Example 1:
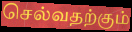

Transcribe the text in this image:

செல்வதற்கும்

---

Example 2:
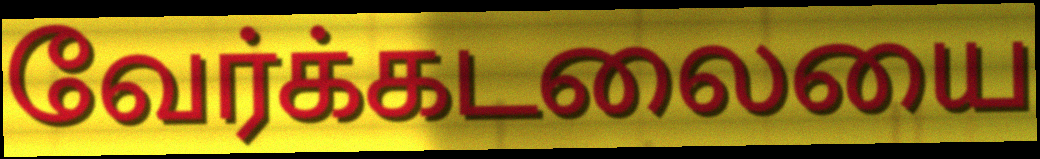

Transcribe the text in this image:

வேர்க்கடலையை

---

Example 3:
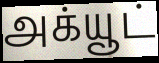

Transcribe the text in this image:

அக்யூட்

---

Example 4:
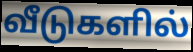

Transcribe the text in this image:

வீடுகளில்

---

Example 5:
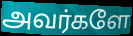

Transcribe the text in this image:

அவர்களே